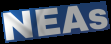
NEAs